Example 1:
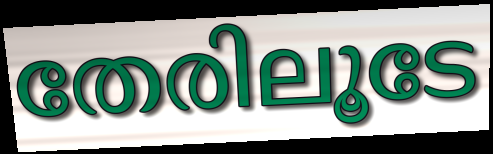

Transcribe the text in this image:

തേരിലൂടേ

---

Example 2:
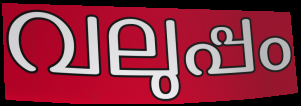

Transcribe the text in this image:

വലുപ്പം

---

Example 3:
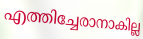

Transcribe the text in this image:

എത്തിച്ചേരാനാകില്ല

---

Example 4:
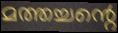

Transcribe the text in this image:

മത്തച്ചന്റെ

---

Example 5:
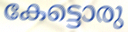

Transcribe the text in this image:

കേട്ടൊരു